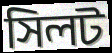
সিলট